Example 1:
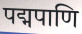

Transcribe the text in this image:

पद्मपाणि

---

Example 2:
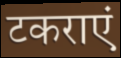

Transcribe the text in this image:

टकराएं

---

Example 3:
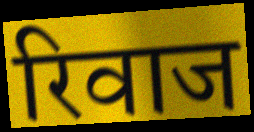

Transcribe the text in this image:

रिवाज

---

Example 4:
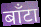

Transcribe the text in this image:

बाँटा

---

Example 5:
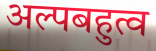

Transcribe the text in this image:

अल्पबहुत्व